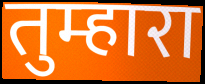
तुम्‍हारा